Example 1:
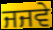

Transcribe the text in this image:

ਜਜਵੇ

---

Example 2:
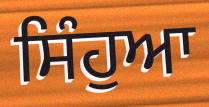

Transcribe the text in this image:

ਸਿੰਹੁਆ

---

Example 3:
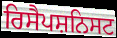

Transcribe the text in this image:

ਰਿਸੈਪਸ਼ਨਿਸਟ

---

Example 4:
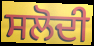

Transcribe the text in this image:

ਸਲੋਦੀ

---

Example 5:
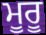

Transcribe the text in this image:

ਮੂਰੂ